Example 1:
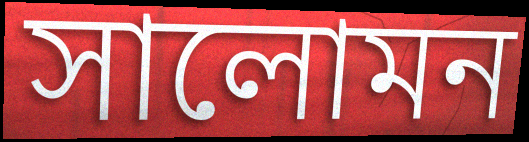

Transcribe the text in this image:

সালোমন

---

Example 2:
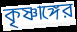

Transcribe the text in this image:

কৃষ্ণাঙ্গের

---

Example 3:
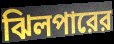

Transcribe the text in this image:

ঝিলপারের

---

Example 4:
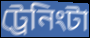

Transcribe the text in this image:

ট্রেনিংটা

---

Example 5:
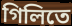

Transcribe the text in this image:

গিলিতে